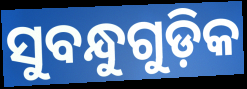
ସୁବନ୍ଧୁଗୁଡ଼ିକ